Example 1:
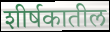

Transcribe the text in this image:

शीर्षकातील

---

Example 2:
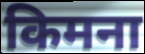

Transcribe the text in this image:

किमना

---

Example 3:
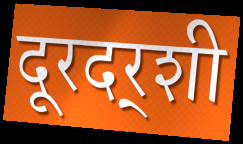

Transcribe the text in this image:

दूरदर्शी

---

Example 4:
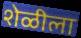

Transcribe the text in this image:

शेळीला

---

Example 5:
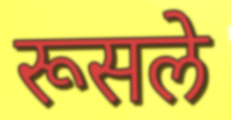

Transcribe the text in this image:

रूसले